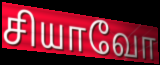
சியாவோ